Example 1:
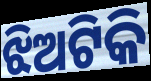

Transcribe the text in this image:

ଝିଅଟିକି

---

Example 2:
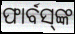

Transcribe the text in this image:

ଫାର୍ବସ୍‌ଙ୍କ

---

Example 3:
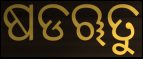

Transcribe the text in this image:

ଷଡୠତୁ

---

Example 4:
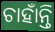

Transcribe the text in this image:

ଚାହାଁନ୍ତି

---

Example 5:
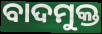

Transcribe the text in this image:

ବାଦମୁକ୍ତ